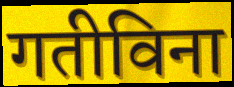
गतीविना